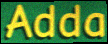
Adda